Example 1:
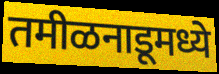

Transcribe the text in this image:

तमीळनाडूमध्ये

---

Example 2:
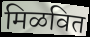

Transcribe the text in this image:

मिळवित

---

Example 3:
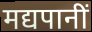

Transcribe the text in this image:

मद्यपानीं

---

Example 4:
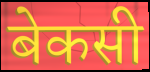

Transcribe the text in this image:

बेकसी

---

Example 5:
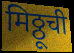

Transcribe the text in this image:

मिठ्ठूची